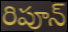
రిపూన్